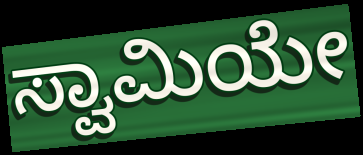
ಸ್ವಾಮಿಯೇ